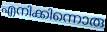
എനിക്കിന്നൊരു